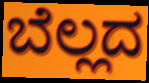
ಬೆಲ್ಲದ